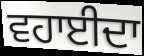
ਵਹਾਈਦਾ